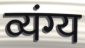
व्‍यंग्‍य